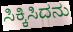
ಸಿಕ್ಕಿಸಿದನು